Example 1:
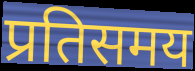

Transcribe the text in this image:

प्रतिसमय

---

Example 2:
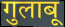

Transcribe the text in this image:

गुलाबू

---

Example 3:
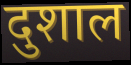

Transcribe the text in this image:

दुशाल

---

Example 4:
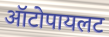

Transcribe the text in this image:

ऑटोपायलट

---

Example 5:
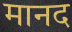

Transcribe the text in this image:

मानद